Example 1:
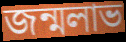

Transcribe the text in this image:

জন্মলাভ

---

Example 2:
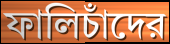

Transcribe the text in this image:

ফালিচাঁদের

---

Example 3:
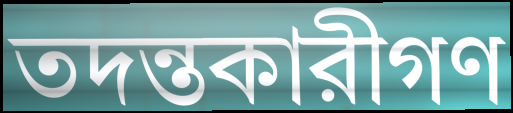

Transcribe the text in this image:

তদন্তকারীগণ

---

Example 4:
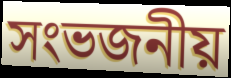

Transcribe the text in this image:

সংভজনীয়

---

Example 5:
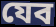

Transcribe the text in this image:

যেব